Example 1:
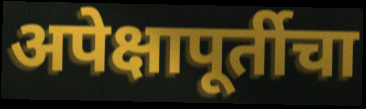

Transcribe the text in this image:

अपेक्षापूर्तीचा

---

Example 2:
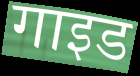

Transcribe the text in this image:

गाइड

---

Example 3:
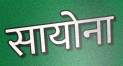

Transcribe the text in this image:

सायोना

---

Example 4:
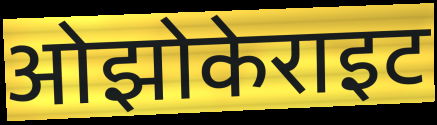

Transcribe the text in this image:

ओझोकेराइट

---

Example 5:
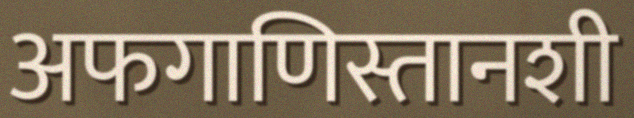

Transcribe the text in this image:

अफगाणिस्तानशी